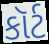
કૉર્ટ